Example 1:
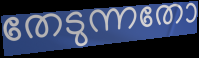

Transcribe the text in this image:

തേടുന്നതോ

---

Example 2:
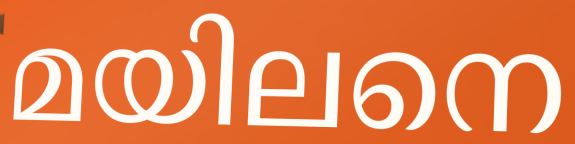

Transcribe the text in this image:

മയിലനെ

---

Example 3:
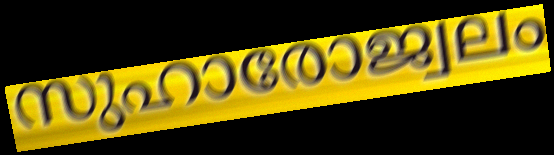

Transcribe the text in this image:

സുഹാരോജ്വലം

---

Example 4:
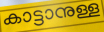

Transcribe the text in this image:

കാട്ടാനുള്ള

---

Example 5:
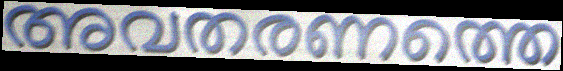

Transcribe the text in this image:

അവതരണത്തെ